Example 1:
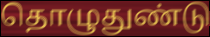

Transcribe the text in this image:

தொழுதுண்டு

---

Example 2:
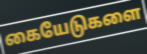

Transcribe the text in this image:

கையேடுகளை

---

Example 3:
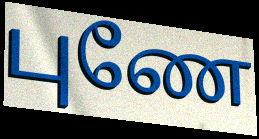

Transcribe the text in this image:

புணே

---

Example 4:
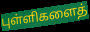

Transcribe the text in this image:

புள்ளிகளைத்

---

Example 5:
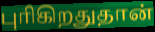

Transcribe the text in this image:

புரிகிறதுதான்